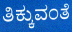
ತಿಕ್ಕುವಂತೆ